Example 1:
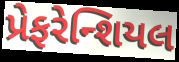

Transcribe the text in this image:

પ્રેફરેન્શિયલ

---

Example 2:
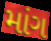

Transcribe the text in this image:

માંગ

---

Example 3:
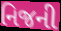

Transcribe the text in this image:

નિજની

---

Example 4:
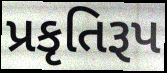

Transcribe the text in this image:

પ્રકૃતિરૂપ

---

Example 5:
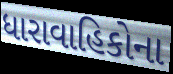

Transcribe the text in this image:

ધારાવાહિકોના